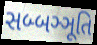
સબ્બઞ્ઞૂતિ